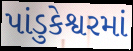
પાંડુકેશ્વરમાં